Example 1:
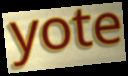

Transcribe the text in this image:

yote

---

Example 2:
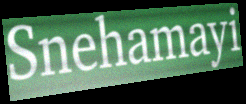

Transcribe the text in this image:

Snehamayi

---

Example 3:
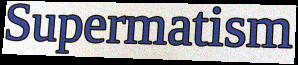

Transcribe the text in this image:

Supermatism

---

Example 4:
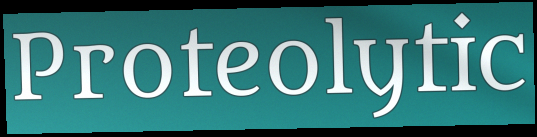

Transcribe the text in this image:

Proteolytic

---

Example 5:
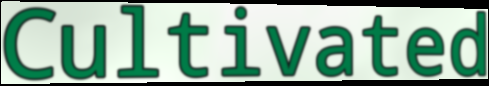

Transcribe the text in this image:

Cultivated